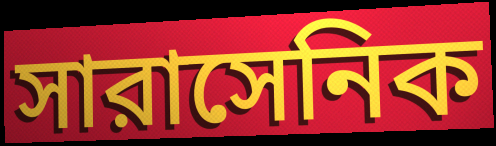
সারাসেনিক